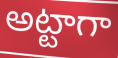
అట్టాగా